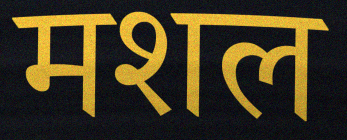
मशल